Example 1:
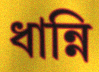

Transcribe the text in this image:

ধান্নি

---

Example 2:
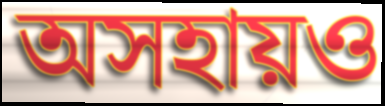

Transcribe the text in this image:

অসহায়ও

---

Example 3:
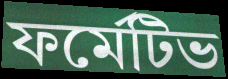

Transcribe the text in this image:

ফর্মেটিভ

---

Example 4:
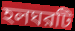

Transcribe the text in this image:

হলঘরটি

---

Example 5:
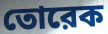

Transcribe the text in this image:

তোরেক